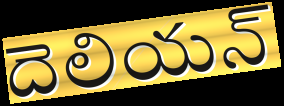
దెలియన్